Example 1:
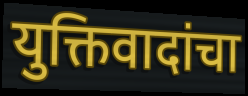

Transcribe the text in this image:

युक्तिवादांचा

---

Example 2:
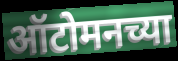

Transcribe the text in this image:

ऑटोमनच्या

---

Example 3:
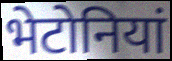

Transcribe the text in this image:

भेटोनियां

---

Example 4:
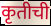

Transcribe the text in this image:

कृतीची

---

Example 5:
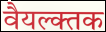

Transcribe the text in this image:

वैयल्क्तक